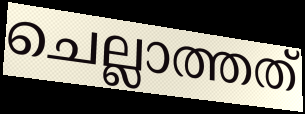
ചെല്ലാത്തത്